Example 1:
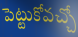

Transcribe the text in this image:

పెట్టుకోవచ్చో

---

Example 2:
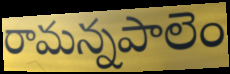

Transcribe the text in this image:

రామన్నపాలెం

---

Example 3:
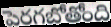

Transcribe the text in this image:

పెరగబోతోంది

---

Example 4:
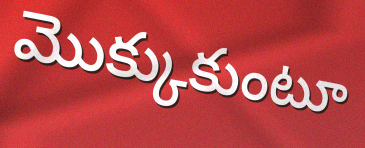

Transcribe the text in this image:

మొక్కుకుంటూ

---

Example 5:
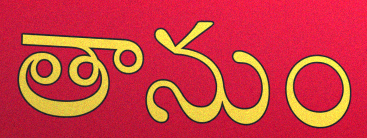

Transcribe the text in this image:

తానుం